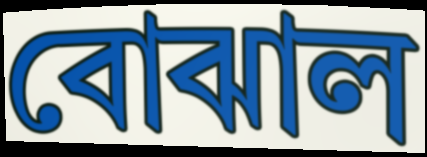
বোঝাল